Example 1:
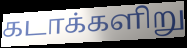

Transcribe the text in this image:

கடாக்களிறு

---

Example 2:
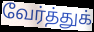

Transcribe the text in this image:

வேர்த்துக்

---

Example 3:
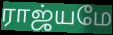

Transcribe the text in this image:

ராஜ்யமே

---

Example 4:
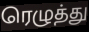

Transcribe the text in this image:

ரெழுத்து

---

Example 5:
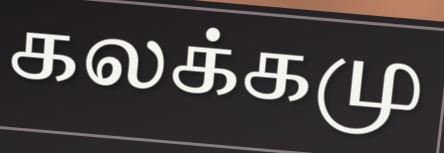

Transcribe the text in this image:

கலக்கமு